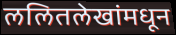
ललितलेखांमधून